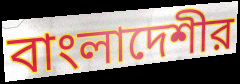
বাংলাদেশীর